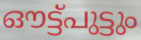
ഔട്ട്പുട്ടും